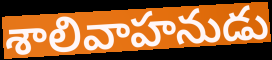
శాలివాహనుడు